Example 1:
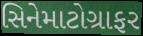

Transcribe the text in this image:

સિનેમાટોગ્રાફર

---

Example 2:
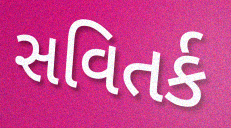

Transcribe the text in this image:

સવિતર્ક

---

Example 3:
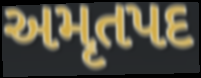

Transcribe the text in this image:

અમૃતપદ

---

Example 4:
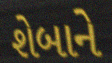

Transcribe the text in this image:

શેબાને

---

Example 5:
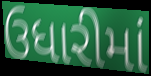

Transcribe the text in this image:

ઉધારીમાં